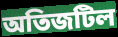
অতিজটিল